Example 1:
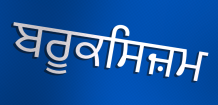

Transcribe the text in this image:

ਬਰੂਕਸਿਜ਼ਮ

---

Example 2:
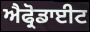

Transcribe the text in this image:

ਐਫ੍ਰੋਡਾਈਟ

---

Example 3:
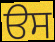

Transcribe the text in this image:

ੳਸ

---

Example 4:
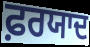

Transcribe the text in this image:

ਫ਼ਰਯਾਦ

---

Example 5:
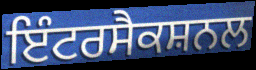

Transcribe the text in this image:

ਇੰਟਰਸੈਕਸ਼ਨਲ